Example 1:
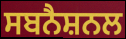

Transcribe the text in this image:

ਸਬਨੈਸ਼ਨਲ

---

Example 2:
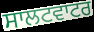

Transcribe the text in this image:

ਸਾਲਟਵਾਟਰ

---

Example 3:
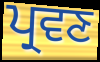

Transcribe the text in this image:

ਪ੍ਰਵਣ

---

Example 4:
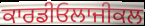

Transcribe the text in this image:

ਕਾਰਡੀਓਲਾਜੀਕਲ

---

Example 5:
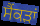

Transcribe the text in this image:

ਸੈਂਕੜਾਂ